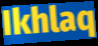
Ikhlaq